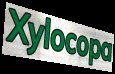
Xylocopa